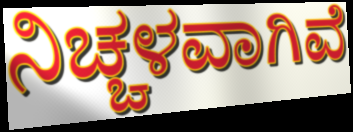
ನಿಚ್ಚಳವಾಗಿವೆ